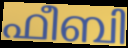
ഫീബി